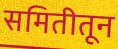
समितीतून